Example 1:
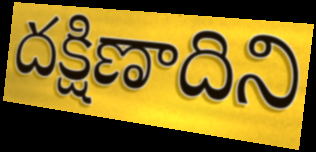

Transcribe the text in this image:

దక్షిణాదిని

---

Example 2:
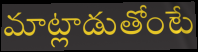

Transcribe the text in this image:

మాట్లాడుతోంటే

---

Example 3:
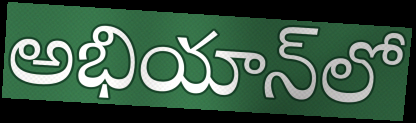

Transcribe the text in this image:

అభియాన్‌లో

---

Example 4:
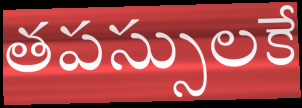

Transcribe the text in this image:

తపస్సులకే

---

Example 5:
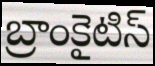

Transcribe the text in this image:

బ్రాంకైటిస్